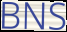
BNS